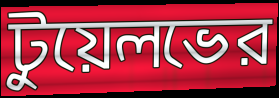
টুয়েলভের